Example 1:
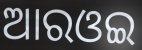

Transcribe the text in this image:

ଆରଓଇ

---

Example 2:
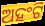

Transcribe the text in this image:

ଅହଂଟି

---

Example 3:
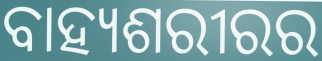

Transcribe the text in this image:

ବାହ୍ୟଶରୀରର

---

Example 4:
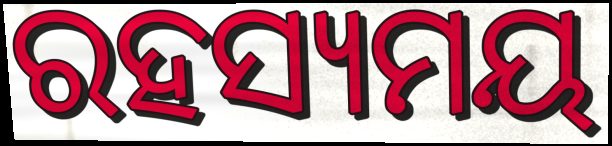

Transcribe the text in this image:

ରହସ୍ୟମୟ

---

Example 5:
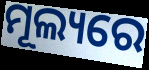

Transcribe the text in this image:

ମୂଲ୍ୟରେ